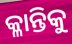
କ୍ଳାନ୍ତିକୁ